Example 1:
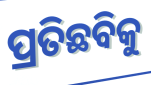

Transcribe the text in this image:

ପ୍ରତିଛବିକୁ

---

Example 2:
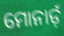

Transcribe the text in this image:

ମୋନାର୍ଡ଼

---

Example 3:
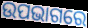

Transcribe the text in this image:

ଉପଭାଗରେ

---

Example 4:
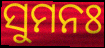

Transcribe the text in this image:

ସୁମନଃ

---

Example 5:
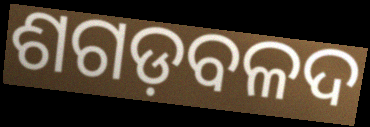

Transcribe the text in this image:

ଶଗଡ଼ବଳଦ